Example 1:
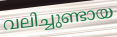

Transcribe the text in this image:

വലിച്ചുണ്ടായ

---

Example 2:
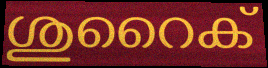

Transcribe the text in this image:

ശുറൈക്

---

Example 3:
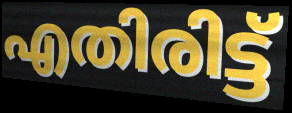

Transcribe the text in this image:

എതിരിട്ട്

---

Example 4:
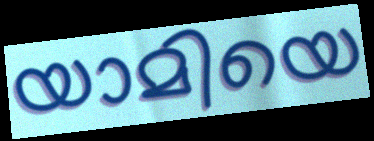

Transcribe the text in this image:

യാമിയെ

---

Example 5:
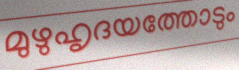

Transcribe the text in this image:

മുഴുഹൃദയത്തോടും